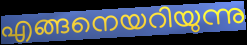
എങ്ങനെയറിയുന്നു